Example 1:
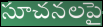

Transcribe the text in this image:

సూచనలపై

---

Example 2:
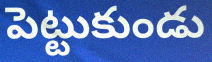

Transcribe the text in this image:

పెట్టుకుండు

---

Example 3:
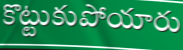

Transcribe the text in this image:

కొట్టుకుపోయారు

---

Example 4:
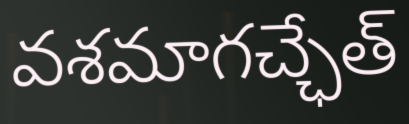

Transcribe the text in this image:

వశమాగచ్ఛేత్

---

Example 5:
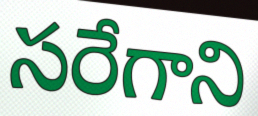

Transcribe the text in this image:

సరేగాని